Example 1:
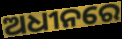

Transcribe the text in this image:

ଅଧୀନରେ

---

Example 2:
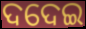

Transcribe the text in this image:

ଦଦେଇ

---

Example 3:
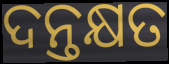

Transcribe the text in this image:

ଦନ୍ତକ୍ଷତ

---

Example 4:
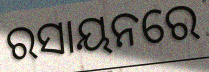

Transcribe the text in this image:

ରସାୟନରେ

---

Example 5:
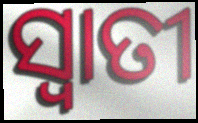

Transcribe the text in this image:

ସ୍ୱାତୀ